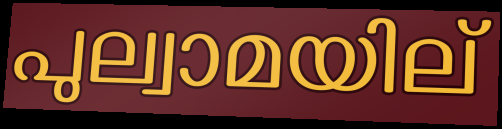
പുല്വാമയില്